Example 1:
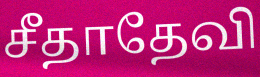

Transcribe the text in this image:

சீதாதேவி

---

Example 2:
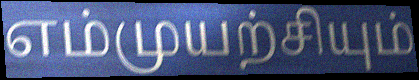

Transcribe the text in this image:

எம்முயற்சியும்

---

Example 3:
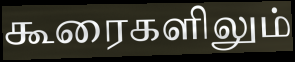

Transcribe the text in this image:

கூரைகளிலும்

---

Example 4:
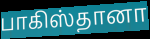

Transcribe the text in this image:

பாகிஸ்தானா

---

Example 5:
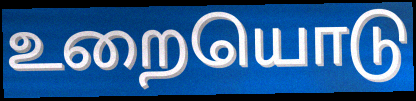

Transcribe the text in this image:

உறையொடு